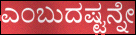
ಎಂಬುದಷ್ಟನ್ನೇ